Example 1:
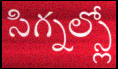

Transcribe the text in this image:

సిగ్నల్స్లో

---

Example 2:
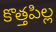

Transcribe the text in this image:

కొత్తపిల్ల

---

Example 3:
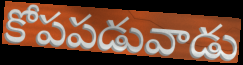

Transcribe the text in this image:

కోపపడువాడు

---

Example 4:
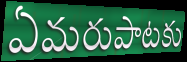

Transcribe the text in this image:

ఏమరుపాటకు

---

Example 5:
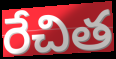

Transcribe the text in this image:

రేచిత